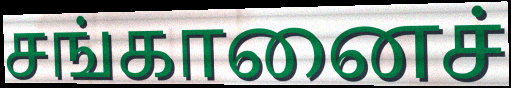
சங்கானைச்